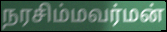
நரசிம்மவர்மன்